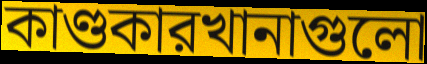
কাণ্ডকারখানাগুলো